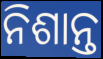
ନିଶାନ୍ତ